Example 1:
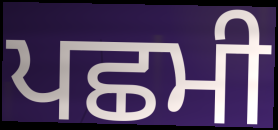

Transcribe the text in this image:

ਪਛਮੀ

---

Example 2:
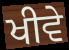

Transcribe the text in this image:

ਖੀਵੇ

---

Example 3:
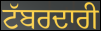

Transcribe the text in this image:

ਟੱਬਰਦਾਰੀ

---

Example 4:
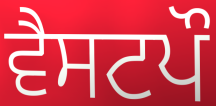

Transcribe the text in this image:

ਵੈਸਟਪੌ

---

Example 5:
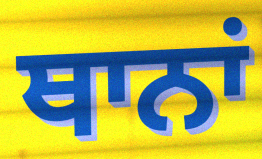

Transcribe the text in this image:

ਥਾਨਾਂ